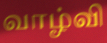
வாழ்வி